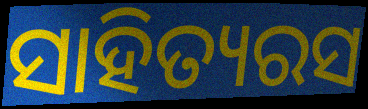
ସାହିତ୍ୟରସ